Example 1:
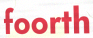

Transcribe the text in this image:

foorth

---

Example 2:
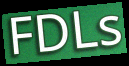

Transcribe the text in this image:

FDLs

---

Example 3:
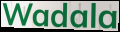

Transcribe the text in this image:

Wadala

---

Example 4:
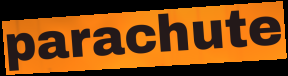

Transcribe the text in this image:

parachute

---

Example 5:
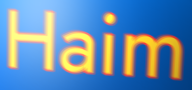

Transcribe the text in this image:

Haim